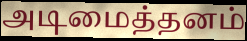
அடிமைத்தனம்